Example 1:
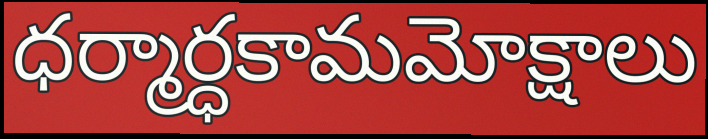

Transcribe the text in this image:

ధర్మార్ధకామమోక్షాలు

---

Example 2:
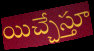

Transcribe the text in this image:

యిచ్చేస్తూ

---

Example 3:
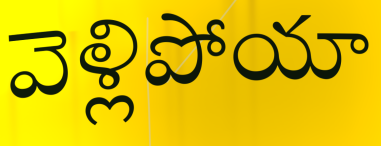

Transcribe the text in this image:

వెళ్లిపోయా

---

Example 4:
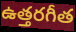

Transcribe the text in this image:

ఉత్తరగీత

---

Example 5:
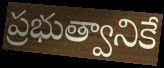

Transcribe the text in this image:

ప్రభుత్వానికే